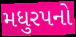
મધુરપનો